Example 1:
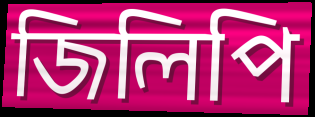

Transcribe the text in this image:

জিলিপি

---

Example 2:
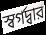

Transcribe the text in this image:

স্বর্গদ্বার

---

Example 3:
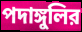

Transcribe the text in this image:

পদাঙ্গুলির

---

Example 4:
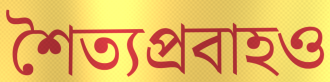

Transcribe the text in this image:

শৈত্যপ্রবাহও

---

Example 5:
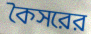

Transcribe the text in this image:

কৈসরের